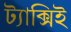
ট্যাক্সিই